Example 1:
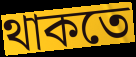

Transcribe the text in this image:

থাকতে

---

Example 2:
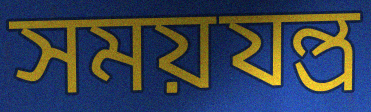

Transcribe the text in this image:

সময়যন্ত্র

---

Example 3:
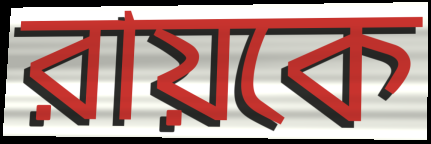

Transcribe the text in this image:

রায়কে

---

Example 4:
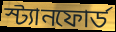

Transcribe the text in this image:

স্ট্যানফোর্ড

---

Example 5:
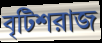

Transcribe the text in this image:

বৃটিশরাজ